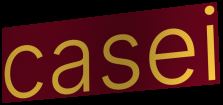
casei